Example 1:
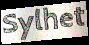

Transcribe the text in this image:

Sylhet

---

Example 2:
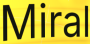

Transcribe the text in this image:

Miral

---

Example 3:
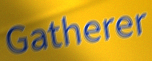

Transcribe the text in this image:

Gatherer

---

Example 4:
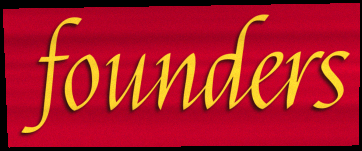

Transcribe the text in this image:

founders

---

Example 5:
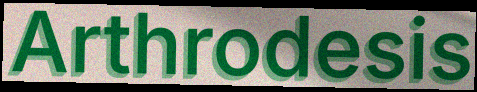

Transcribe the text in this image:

Arthrodesis